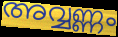
അവ്വണ്ണം